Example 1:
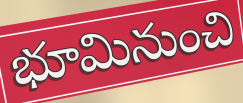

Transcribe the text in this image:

భూమినుంచి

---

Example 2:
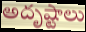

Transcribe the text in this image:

అదృష్టాలు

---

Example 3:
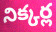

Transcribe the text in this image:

నిక్కర్ల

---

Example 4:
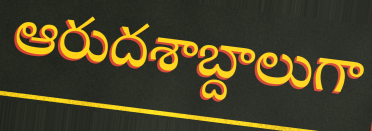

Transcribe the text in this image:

ఆరుదశాబ్దాలుగా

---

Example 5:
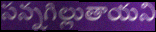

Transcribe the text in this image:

సన్నగిల్లుతాయని